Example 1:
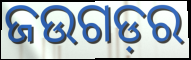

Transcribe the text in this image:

ଜଉଗଡ଼ର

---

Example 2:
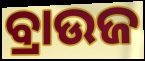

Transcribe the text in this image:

ବ୍ରାଉଜ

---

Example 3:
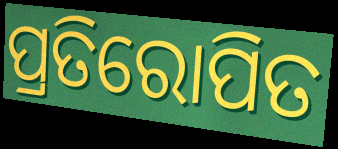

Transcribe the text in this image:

ପ୍ରତିରୋପିତ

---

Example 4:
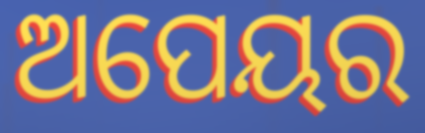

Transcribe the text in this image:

ଅପେୟର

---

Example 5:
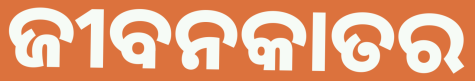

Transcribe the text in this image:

ଜୀବନକାତର